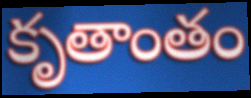
కృతాంతం